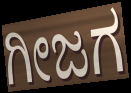
ಗೀಜಗ